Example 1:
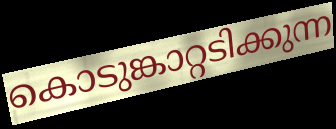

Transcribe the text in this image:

കൊടുങ്കാറ്റടിക്കുന്ന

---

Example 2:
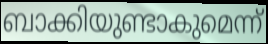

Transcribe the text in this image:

ബാക്കിയുണ്ടാകുമെന്ന്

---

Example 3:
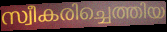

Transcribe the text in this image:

സ്വീകരിച്ചെത്തിയ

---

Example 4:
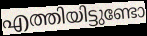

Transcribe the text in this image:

എത്തിയിട്ടുണ്ടോ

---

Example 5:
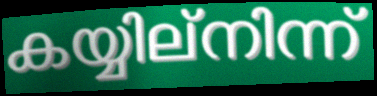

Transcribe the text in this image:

കയ്യില്നിന്ന്